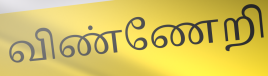
விண்ணேறி